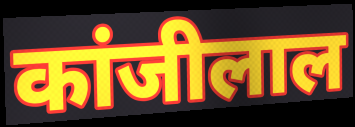
कांजीलाल